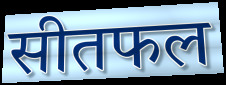
सीतफल